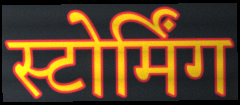
स्टोर्मिंग